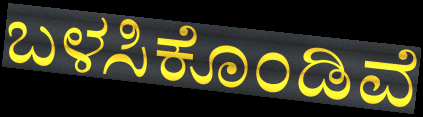
ಬಳಸಿಕೊಂಡಿವೆ